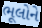
ભૂલોને